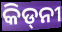
କିଡ୍‍ନୀ